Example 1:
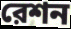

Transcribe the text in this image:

রেশন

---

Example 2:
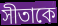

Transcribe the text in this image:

সীতাকে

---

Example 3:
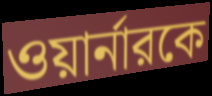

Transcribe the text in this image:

ওয়ার্নারকে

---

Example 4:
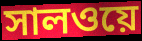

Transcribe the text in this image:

সালওয়ে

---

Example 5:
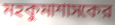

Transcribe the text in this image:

মহকুমাশাসকের